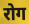
रोग